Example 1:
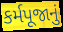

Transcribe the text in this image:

કર્મપૂજાનું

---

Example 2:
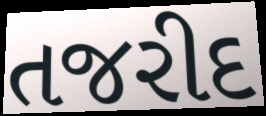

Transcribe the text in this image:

તજરીદ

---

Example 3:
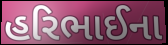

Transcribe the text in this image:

હરિભાઈના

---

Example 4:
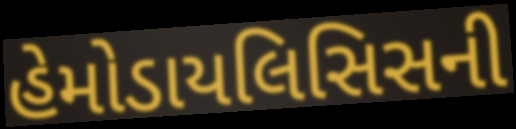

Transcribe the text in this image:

હેમોડાયલિસિસની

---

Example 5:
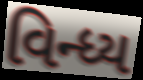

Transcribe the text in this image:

વિન્ધ્ય